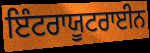
ਇੰਟਰਾਯੂਟਰਾਈਨ